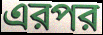
এরপর